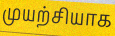
முயற்சியாக